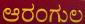
ಆರಂಗುಲ